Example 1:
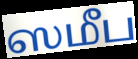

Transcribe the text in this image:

ஸமீப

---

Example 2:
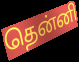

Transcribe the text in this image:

தென்னி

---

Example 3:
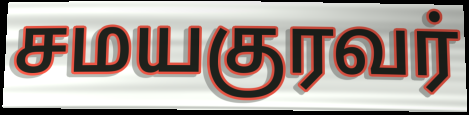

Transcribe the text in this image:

சமயகுரவர்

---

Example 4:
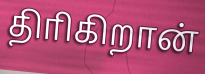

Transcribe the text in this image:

திரிகிறான்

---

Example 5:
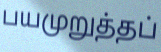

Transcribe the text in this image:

பயமுறுத்தப்